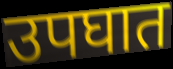
उपघात